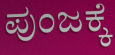
ಪುಂಜಕ್ಕೆ